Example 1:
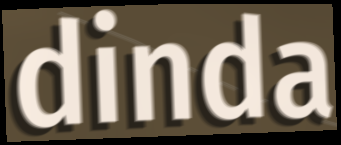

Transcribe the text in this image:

dinda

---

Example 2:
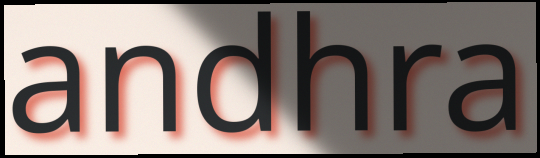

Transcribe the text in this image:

andhra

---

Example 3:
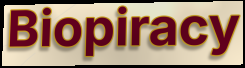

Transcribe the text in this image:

Biopiracy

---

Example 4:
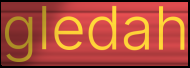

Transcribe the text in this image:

gledah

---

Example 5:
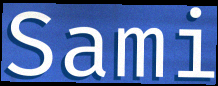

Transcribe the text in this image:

Sami